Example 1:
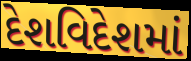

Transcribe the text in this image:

દેશવિદેશમાં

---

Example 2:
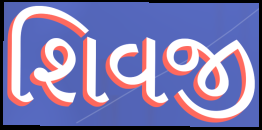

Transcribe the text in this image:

શિવજી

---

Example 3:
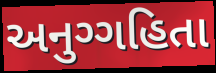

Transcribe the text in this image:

અનુગ્ગહિતા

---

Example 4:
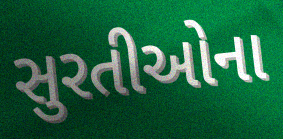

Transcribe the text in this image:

સુરતીઓના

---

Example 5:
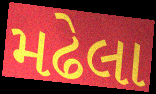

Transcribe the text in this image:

મઢેલા